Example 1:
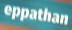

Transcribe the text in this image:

eppathan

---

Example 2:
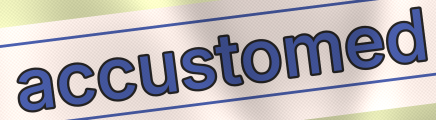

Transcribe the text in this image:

accustomed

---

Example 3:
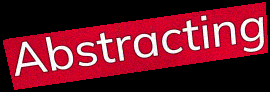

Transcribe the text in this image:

Abstracting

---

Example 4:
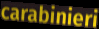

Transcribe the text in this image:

carabinieri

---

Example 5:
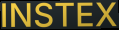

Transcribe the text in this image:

INSTEX